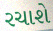
રચાશે